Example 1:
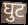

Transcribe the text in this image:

घुट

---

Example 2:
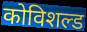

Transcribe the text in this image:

कोविशल्ड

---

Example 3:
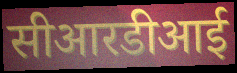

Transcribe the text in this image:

सीआरडीआई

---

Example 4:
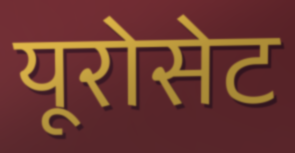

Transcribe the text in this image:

यूरोसेट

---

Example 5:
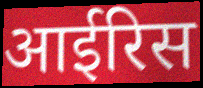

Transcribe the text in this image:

आईरिस